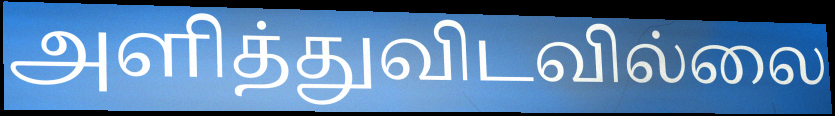
அளித்துவிடவில்லை